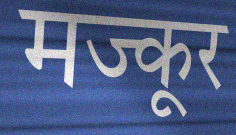
मज्कूर